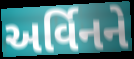
અર્વિનને